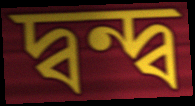
দ্বন্দ্ব